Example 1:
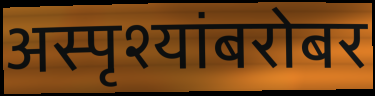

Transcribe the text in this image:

अस्पृश्यांबरोबर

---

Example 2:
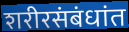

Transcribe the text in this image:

शरीरसंबंधांत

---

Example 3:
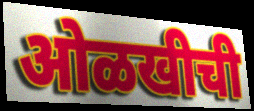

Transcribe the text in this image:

ओळखीची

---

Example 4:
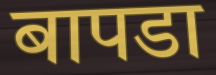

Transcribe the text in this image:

बापडा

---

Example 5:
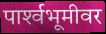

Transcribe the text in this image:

पार्श्‍वभूमीवर